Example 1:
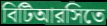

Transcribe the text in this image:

বিটিআরসিতে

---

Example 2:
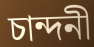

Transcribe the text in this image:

চান্দনী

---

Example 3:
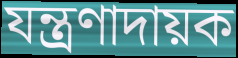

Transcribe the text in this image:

যন্ত্রণাদায়ক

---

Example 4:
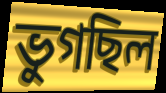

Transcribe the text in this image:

ভুগছিল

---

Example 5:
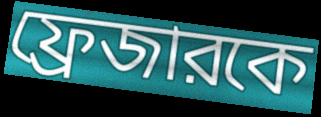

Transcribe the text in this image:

ফ্রেজারকে